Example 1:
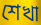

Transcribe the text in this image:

শেখা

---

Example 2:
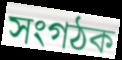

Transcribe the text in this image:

সংগঠক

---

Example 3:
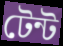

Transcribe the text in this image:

টেন্ট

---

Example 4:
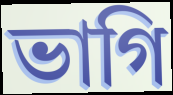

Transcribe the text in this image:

ভাগি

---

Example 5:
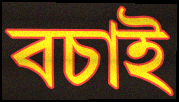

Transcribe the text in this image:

বচাই